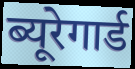
ब्यूरेगार्ड